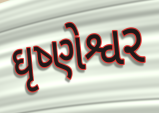
ઘૃષ્ણેશ્વર